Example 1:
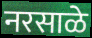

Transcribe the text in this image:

नरसाळे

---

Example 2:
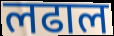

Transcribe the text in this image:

लढाल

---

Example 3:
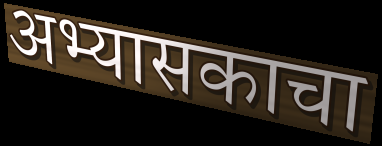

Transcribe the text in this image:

अभ्यासकाचा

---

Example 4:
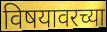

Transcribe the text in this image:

विषयावरच्या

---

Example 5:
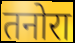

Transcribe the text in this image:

तनोरा